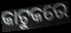
କାଟୁକରେ